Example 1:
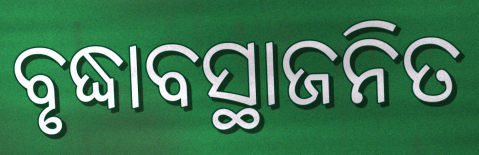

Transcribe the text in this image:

ବୃଦ୍ଧାବସ୍ଥାଜନିତ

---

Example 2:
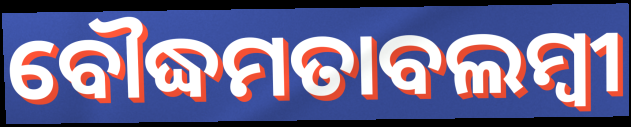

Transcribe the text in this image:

ବୌଦ୍ଧମତାବଲମ୍ବୀ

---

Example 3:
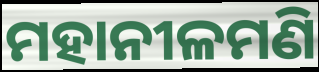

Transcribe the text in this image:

ମହାନୀଳମଣି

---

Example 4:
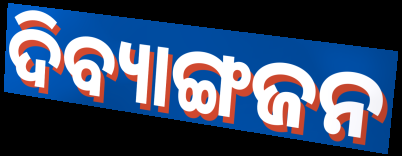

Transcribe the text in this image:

ଦିବ୍ୟାଙ୍ଗଜନ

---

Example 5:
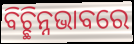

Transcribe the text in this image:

ବିଚ୍ଛିନ୍ନଭାବରେ